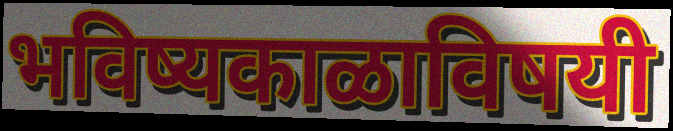
भविष्यकाळाविषयी